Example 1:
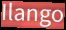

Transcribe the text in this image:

Ilango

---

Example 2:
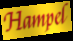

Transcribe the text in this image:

Hampel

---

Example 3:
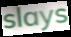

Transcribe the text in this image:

slays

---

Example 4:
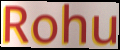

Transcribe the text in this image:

Rohu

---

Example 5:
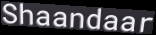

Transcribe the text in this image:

Shaandaar